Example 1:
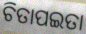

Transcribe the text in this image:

ଚିତାପଇତା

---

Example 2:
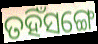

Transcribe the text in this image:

ତହିଁସଙ୍ଗେ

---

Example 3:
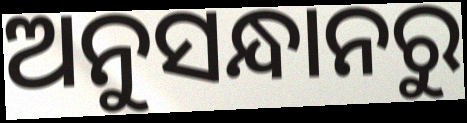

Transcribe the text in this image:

ଅନୁସନ୍ଧାନରୁ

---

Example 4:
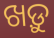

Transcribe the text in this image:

ଖଡ଼ୁ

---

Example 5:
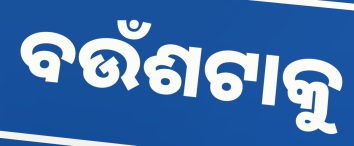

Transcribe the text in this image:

ବଉଁଶଟାକୁ